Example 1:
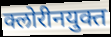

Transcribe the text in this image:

क्लोरीनयुक्त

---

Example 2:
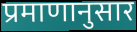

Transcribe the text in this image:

प्रमाणानुसार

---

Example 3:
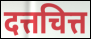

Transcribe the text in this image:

दत्तचित्त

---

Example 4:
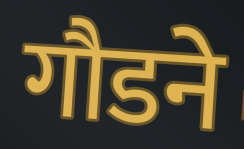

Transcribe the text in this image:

गौडने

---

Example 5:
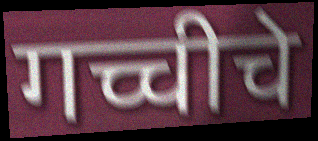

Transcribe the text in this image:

गच्चीचे